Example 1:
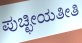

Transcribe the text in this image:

ಪುಚ್ಛೀಯತೀತಿ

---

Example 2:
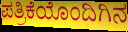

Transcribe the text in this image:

ಪತ್ರಿಕೆಯೊಂದಿಗಿನ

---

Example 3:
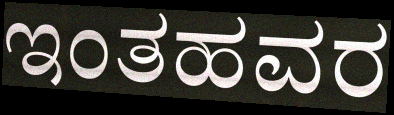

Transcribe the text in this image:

ಇಂತಹವರ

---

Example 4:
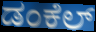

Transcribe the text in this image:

ಡಂಕೆಲ್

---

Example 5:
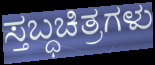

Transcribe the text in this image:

ಸ್ತಬ್ಧಚಿತ್ರಗಳು